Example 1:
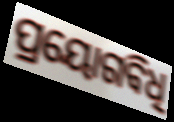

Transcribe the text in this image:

ପ୍ରୟୋଗବିଧି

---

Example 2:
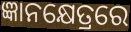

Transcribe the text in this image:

ଜ୍ଞାନକ୍ଷେତ୍ରରେ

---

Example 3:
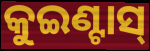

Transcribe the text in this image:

କୁଇଣ୍ଟାସ୍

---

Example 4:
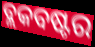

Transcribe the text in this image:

ବ୍ଲକବଷ୍ଟର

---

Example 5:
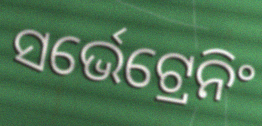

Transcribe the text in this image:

ସର୍ଭେଟ୍ରେନିଂ